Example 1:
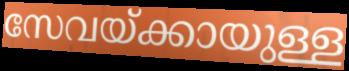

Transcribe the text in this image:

സേവയ്ക്കായുള്ള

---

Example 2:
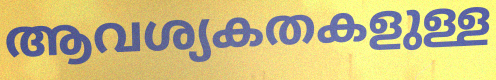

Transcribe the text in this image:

ആവശ്യകതകളുള്ള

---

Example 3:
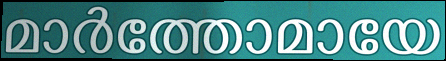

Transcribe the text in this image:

മാർത്തോമായേ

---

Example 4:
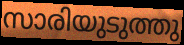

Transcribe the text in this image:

സാരിയുടുത്തു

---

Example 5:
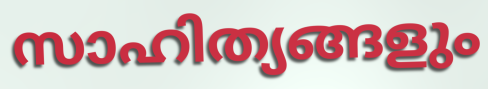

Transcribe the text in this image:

സാഹിത്യങ്ങളും